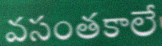
వసంతకాలే